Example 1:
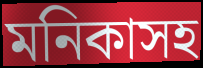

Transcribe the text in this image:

মনিকাসহ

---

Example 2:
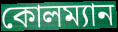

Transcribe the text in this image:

কোলম্যান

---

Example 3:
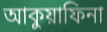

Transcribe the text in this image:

আকুয়াফিনা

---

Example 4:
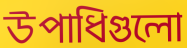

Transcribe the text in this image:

উপাধিগুলো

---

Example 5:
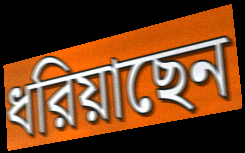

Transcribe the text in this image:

ধরিয়াছেন